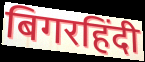
बिगरहिंदी